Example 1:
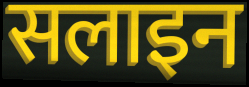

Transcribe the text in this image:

सलाइन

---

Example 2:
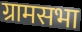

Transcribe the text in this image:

ग्रामसभा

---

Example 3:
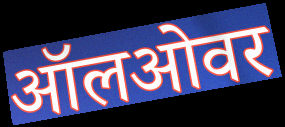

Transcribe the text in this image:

ऑलओवर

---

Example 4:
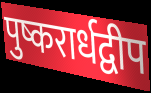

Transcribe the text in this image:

पुष्करार्धद्वीप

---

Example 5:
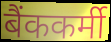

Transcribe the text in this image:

बैंककर्मी